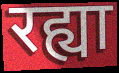
रह्या